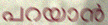
പറയാൻ